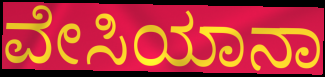
ವೇಸಿಯಾನಾ